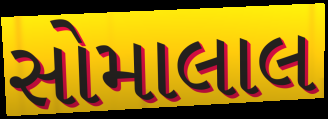
સોમાલાલ